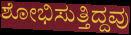
ಶೋಭಿಸುತ್ತಿದ್ದವು